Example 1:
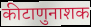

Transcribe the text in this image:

कीटाणुनाशक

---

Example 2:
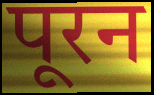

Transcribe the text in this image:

पूरन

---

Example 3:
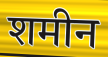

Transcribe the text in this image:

शमीन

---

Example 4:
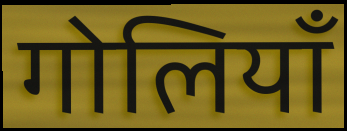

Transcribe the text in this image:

गोलियाँ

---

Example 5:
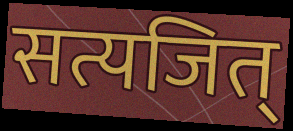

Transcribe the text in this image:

सत्यजित्